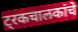
ट्रकचालकांचे